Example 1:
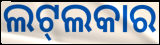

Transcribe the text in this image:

ଲଟ୍‌ଲକାର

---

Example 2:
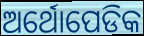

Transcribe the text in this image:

ଅର୍ଥୋପେଡିକ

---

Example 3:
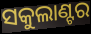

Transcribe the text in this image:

ସକୁଲାଣ୍ଟର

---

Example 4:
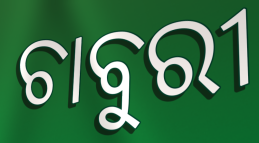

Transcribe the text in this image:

ଚାବୁରୀ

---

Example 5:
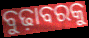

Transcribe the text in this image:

ବୁଢ଼ାବରକୁ